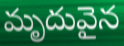
మృదువైన